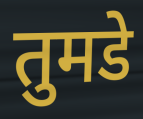
तुमडे